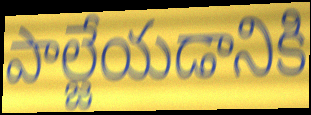
పాల్జేయడానికి